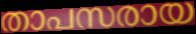
താപസരായ